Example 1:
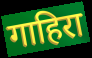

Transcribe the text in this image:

गाहिरा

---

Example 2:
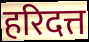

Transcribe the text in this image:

हरिदत्त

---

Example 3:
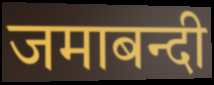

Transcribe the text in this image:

जमाबन्दी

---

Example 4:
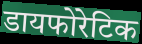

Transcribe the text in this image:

डायफोरेटिक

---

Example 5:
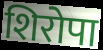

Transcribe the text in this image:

शिरोपा